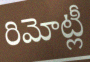
రిమోట్లీ